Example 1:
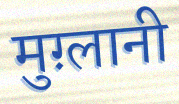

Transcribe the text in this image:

मुग़्लानी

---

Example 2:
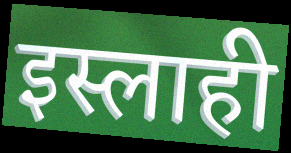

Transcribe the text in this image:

इस्लाही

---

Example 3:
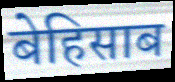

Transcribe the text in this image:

बेहिसाब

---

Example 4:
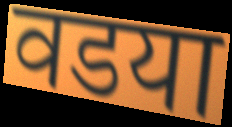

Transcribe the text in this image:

वडया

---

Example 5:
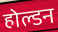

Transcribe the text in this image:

होल्डन